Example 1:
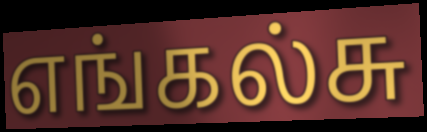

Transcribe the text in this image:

எங்கல்சு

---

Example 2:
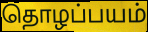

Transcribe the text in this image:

தொழப்பயம்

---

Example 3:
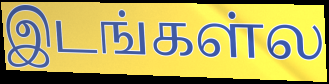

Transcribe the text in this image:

இடங்கள்ல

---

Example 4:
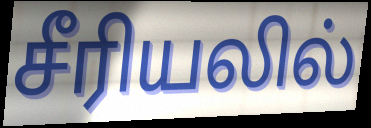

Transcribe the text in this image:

சீரியலில்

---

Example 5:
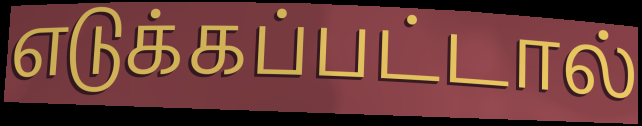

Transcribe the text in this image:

எடுக்கப்பட்டால்